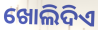
ଖୋଲିଦିଏ